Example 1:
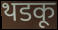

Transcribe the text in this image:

थडकू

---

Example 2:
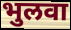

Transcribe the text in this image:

भुलवा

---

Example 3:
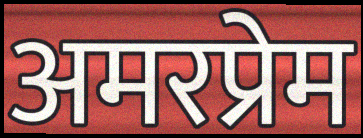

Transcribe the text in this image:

अमरप्रेम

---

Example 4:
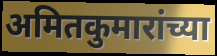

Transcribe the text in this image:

अमितकुमारांच्या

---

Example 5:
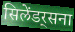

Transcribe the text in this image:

सिलेंडर्सना